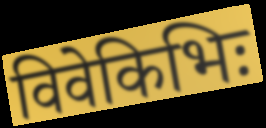
विवेकिभिः